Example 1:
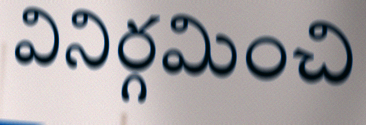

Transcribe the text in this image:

వినిర్గమించి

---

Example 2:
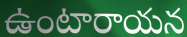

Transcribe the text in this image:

ఉంటారాయన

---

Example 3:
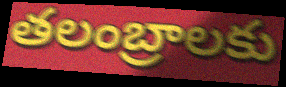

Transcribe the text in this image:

తలంబ్రాలకు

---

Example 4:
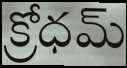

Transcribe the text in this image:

క్రోధమ్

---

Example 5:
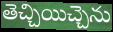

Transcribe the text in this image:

తెచ్చియిచ్చెను